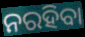
ନରହିବା